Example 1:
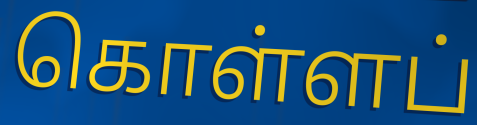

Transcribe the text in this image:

கொள்ளப்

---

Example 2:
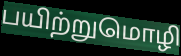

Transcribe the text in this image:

பயிற்றுமொழி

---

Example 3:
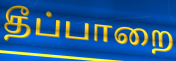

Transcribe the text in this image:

தீப்பாறை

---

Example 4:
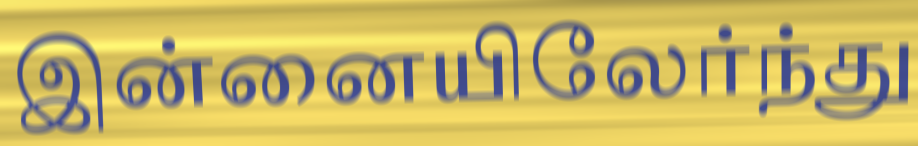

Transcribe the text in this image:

இன்னையிலேர்ந்து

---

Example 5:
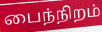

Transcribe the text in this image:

பைந்நிறம்